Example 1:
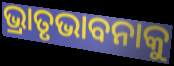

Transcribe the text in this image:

ଭ୍ରାତୃଭାବନାକୁ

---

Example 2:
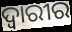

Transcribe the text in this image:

ଦ୍ୱାରୀର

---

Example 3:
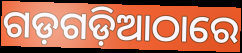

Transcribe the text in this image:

ଗଡ଼ଗଡ଼ିଆଠାରେ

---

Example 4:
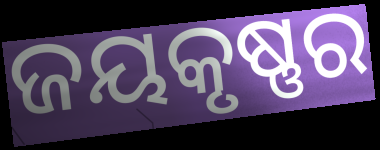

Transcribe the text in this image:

ଜୟକୃଷ୍ଣର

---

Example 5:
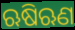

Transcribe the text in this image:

ଋଷିଋଣ